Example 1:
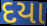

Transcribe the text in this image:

દયા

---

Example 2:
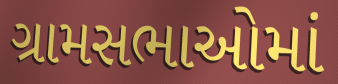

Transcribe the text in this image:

ગ્રામસભાઓમાં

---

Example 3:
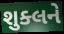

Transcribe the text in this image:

શુક્લને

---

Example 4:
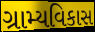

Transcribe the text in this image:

ગ્રામ્યવિકાસ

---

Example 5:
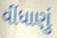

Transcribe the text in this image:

વીંધાણું